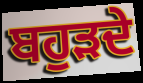
ਬਹੁੜਦੇ